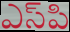
ఎస్‌పి